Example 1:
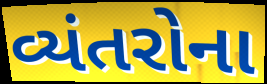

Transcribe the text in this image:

વ્યંતરોના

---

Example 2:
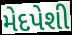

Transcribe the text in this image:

મેદપેશી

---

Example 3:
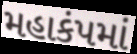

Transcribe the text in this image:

મહાકંપમાં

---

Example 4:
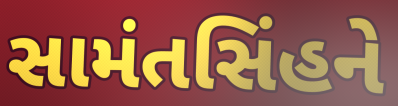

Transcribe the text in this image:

સામંતસિંહને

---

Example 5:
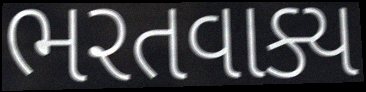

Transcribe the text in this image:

ભરતવાક્ય